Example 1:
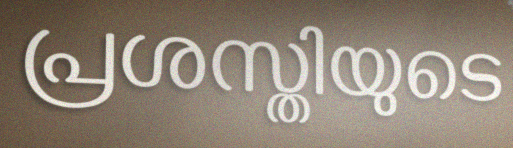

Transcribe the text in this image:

പ്രശസ്തിയുടെ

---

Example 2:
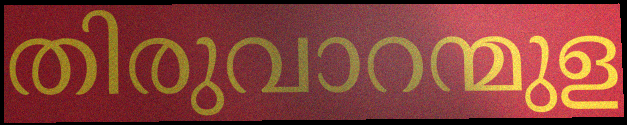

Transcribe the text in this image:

തിരുവാറന്മുള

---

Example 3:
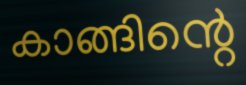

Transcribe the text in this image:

കാങ്ങിന്റെ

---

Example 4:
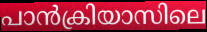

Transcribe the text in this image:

പാൻക്രിയാസിലെ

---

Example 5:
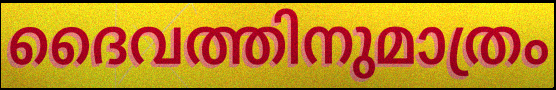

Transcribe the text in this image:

ദൈവത്തിനുമാത്രം